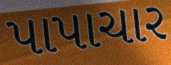
પાપાચાર